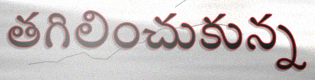
తగిలించుకున్న